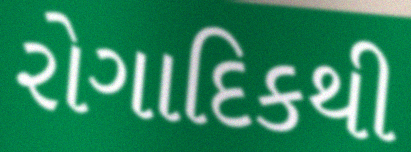
રોગાદિકથી